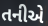
તનીએ